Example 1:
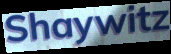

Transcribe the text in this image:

Shaywitz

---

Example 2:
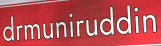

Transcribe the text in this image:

drmuniruddin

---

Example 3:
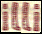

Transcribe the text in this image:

illi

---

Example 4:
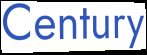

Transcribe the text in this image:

Century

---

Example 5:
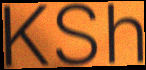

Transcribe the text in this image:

KSh